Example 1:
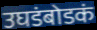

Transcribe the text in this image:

उघडंबोडकं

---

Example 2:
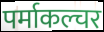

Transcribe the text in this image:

पर्माकल्चर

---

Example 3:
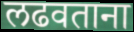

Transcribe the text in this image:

लढवताना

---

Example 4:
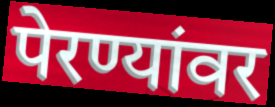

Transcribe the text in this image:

पेरण्यांवर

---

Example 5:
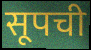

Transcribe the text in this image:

सूपची